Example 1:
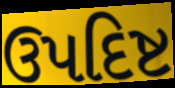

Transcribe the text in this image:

ઉપદિષ્ટ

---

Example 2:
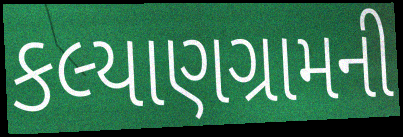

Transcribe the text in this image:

કલ્યાણગ્રામની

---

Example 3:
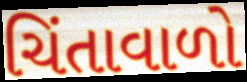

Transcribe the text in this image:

ચિંતાવાળો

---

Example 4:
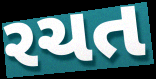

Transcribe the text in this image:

રચત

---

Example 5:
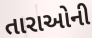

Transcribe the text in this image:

તારાઓની